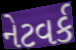
નેટવર્ક